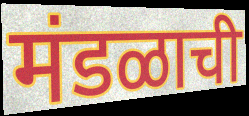
मंडळाची